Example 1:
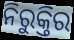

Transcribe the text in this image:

ନିରୁକ୍ତିର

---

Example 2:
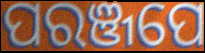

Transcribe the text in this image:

ପରଞ୍ଜପେ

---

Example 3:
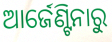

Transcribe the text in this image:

ଆର୍ଜେଣ୍ଟିନାରୁ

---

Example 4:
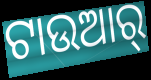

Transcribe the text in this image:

ଟାଉଆର୍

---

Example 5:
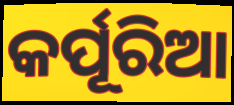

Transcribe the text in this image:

କର୍ପୂରିଆ